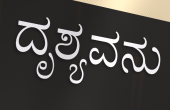
ದೃಶ್ಯವನು